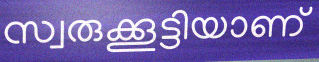
സ്വരുക്കൂട്ടിയാണ്